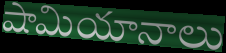
షామియానాలు